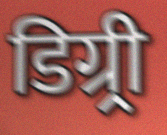
डिग्र्री